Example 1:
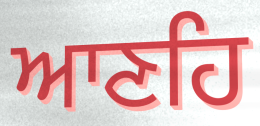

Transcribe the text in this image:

ਆਣਹਿ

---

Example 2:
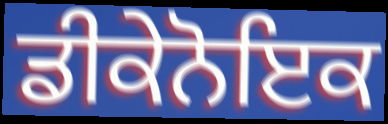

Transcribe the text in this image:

ਡੀਕੇਨੋਇਕ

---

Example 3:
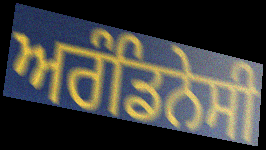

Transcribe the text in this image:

ਅਰੰਡਿਨੇਸੀ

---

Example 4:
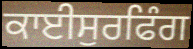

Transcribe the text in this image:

ਕਾਈਸੁਰਫਿੰਗ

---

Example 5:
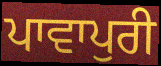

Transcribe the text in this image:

ਪਾਵਾਪੁਰੀ